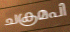
ചക്രമപി